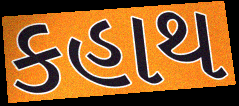
કહાથ